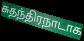
சுதந்திரநாடாக